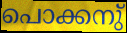
പൊക്കനു്